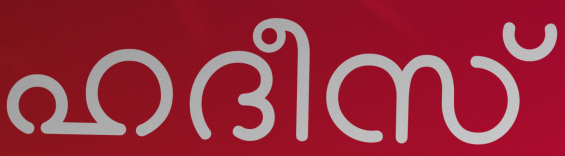
ഹദീസ്